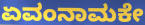
ಏವಂನಾಮಕೇ